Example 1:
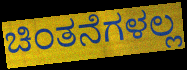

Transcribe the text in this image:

ಚಿಂತನೆಗಳಲ್ಲ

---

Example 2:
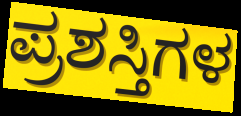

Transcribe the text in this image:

ಪ್ರಶಸ್ತಿಗಳ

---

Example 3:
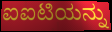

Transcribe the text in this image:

ಐಐಟಿಯನ್ನು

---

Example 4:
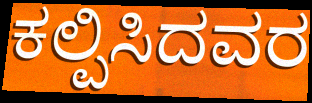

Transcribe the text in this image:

ಕಲ್ಪಿಸಿದವರ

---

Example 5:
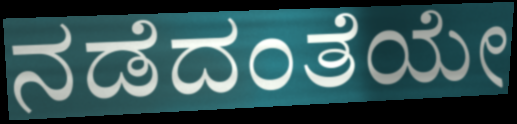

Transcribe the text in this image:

ನಡೆದಂತೆಯೇ